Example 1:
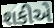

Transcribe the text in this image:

શકીએ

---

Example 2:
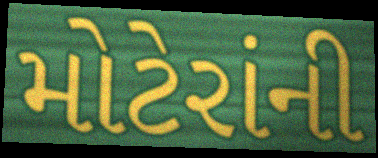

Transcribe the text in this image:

મોટેરાંની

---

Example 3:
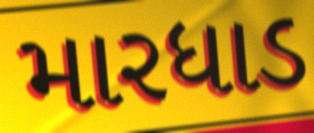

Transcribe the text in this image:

મારધાડ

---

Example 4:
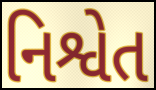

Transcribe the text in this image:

નિશ્વેત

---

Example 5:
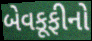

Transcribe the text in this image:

બેવકૂફીનો